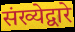
संख्येद्वारे